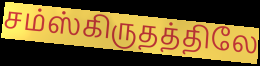
சம்ஸ்கிருதத்திலே